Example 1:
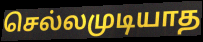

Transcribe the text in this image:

செல்லமுடியாத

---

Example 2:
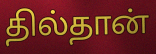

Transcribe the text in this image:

தில்தான்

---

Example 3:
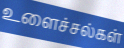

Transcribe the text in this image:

உளைச்சல்கள்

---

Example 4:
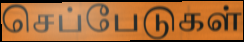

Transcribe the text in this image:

செப்பேடுகள்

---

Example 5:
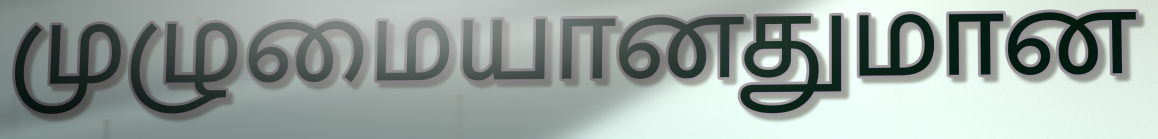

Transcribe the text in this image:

முழுமையானதுமான